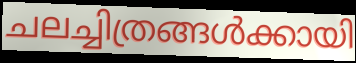
ചലച്ചിത്രങ്ങൾക്കായി